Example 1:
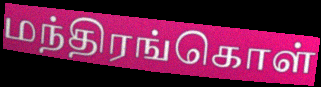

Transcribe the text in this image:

மந்திரங்கொள்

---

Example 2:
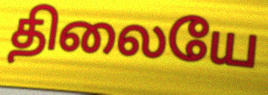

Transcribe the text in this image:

திலையே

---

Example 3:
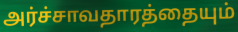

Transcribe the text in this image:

அர்ச்சாவதாரத்தையும்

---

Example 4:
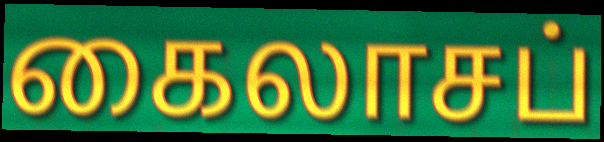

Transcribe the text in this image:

கைலாசப்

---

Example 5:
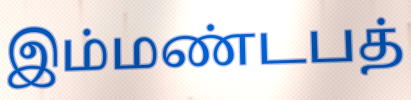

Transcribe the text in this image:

இம்மண்டபத்